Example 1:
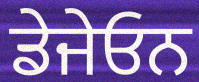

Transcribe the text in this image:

ਡੇਜੇਓਨ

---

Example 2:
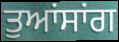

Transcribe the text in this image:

ਤੁਆਂਸਾਂਗ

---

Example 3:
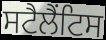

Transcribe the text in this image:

ਸਟੈਲੈਂਟਿਸ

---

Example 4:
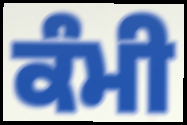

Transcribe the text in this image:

ਕੰਮੀ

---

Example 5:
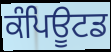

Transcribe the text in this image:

ਕੰਪਿਊਟਡ